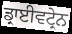
ਡ੍ਰਾਈਵਟ੍ਰੇਨ